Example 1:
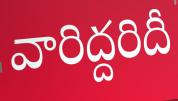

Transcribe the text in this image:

వారిద్దరిదీ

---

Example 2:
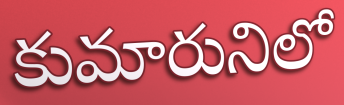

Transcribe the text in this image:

కుమారునిలో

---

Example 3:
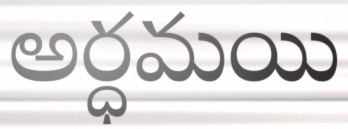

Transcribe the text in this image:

అర్ధమయి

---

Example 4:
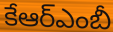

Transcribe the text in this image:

కేఆర్ఎంబీ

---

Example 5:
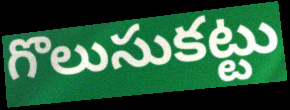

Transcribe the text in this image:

గొలుసుకట్టు